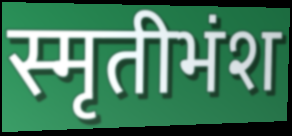
स्मृतीभंश